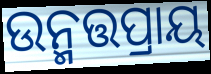
ଉନ୍ମତ୍ତପ୍ରାୟ